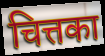
चित्तका